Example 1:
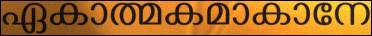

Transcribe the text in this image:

ഏകാത്മകമാകാനേ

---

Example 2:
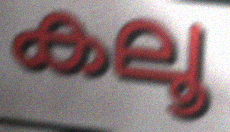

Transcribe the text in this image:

കലൂ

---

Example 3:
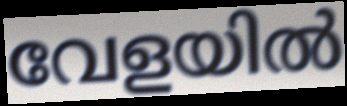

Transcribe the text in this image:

വേളയിൽ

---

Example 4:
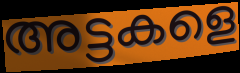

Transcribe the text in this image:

അട്ടകളെ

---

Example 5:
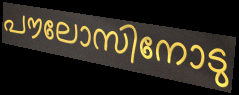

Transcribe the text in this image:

പൗലോസിനോടു